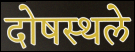
दोषस्थले